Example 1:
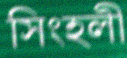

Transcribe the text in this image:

সিংহলী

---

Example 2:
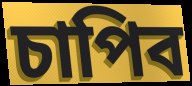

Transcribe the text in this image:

চাপিব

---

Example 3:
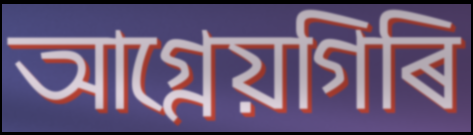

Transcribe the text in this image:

আগ্নেয়গিৰি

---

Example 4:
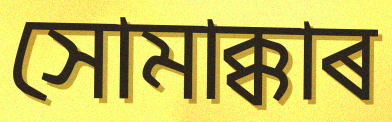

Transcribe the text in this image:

সোমাক্কাৰ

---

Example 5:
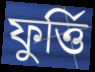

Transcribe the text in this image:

ফুৰ্ত্তি